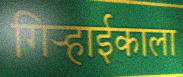
गिऱ्हाईकाला